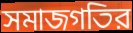
সমাজগতির